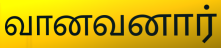
வானவனார்